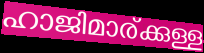
ഹാജിമാര്ക്കുള്ള